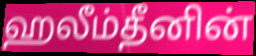
ஹலீம்தீனின்